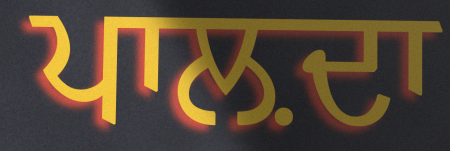
ਪਾਲ਼ਦਾ